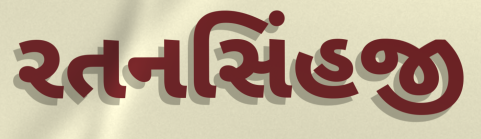
રતનસિંહજી